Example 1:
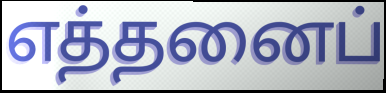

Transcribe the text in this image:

எத்தனைப்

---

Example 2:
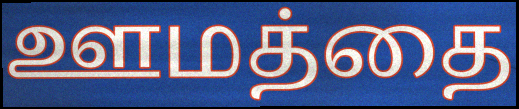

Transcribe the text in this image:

ஊமத்தை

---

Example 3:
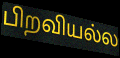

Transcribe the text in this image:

பிறவியல்ல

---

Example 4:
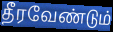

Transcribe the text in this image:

தீரவேண்டும்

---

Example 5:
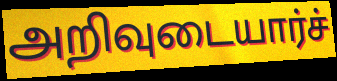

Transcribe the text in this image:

அறிவுடையார்ச்